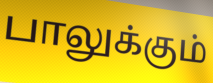
பாலுக்கும்